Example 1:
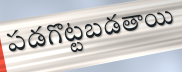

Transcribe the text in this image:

పడగొట్టబడతాయి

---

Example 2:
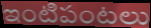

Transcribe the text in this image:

ఇంటిపంటలు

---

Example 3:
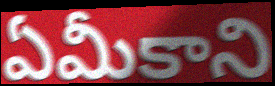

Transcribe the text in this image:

ఏమీకాని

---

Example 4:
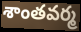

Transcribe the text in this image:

శాంతవర్మ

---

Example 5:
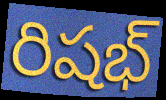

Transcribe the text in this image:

రిషభ్